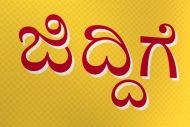
ಜಿದ್ದಿಗೆ